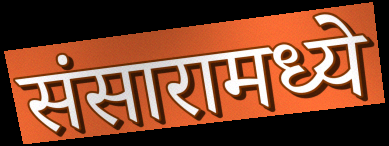
संसारामध्ये